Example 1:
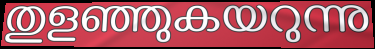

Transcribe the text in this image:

തുളഞ്ഞുകയറുന്നു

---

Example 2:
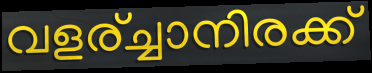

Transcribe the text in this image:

വളര്ച്ചാനിരക്ക്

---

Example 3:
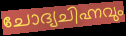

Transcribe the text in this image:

ചോദ്യചിഹ്നവും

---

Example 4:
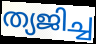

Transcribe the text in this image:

ത്യജിച്ച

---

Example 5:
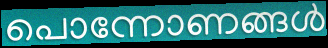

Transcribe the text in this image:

പൊന്നോണങ്ങൾ